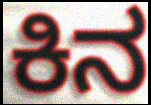
ಕಿನ